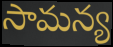
సామన్య